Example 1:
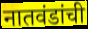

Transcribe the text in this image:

नातवंडांची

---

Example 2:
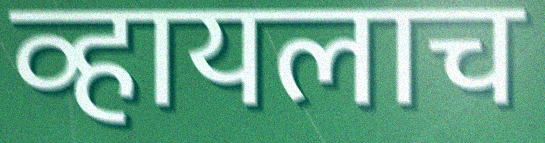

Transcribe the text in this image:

व्हायलाच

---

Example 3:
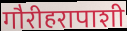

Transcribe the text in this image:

गौरीहरापाशी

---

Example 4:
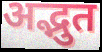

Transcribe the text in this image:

अद्भुत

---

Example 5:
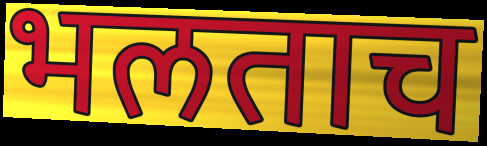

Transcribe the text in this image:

भलताच